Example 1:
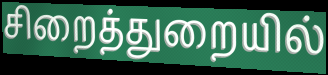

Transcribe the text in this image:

சிறைத்துறையில்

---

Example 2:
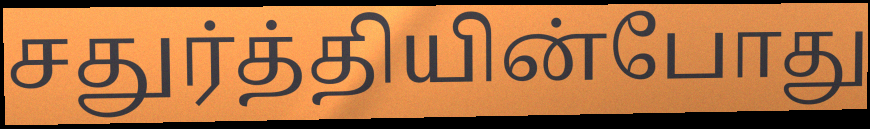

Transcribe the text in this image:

சதுர்த்தியின்போது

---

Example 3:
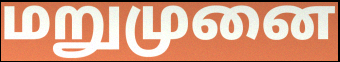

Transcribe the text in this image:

மறுமுனை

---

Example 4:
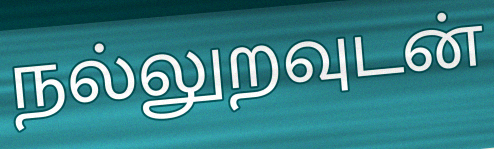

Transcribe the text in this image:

நல்லுறவுடன்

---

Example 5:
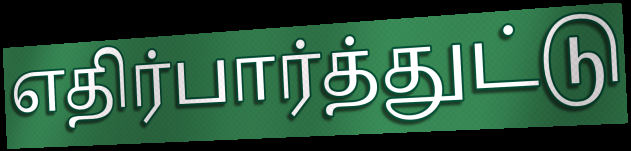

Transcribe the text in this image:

எதிர்பார்த்துட்டு